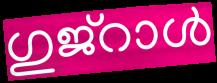
ഗുജ്റാൾ